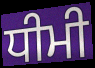
ਧੀਮੀ